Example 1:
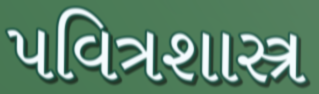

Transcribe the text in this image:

પવિત્રશાસ્ત્ર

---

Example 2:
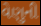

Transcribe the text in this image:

વેણુની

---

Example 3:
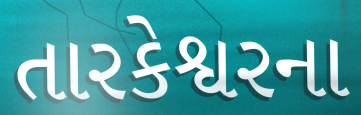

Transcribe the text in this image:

તારકેશ્વરના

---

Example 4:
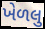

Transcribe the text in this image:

ખેળલુ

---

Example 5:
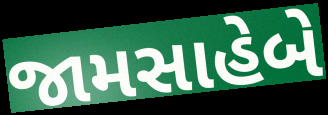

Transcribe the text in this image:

જામસાહેબે